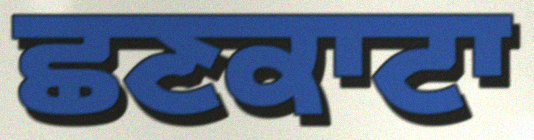
ਛਣਕਾਟਾ